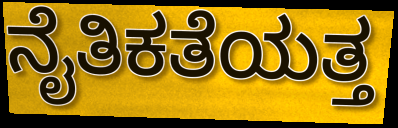
ನೈತಿಕತೆಯತ್ತ